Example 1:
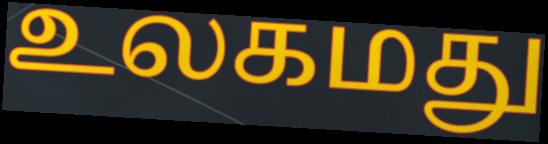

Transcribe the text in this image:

உலகமது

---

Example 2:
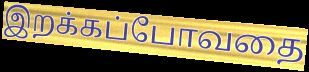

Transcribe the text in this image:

இறக்கப்போவதை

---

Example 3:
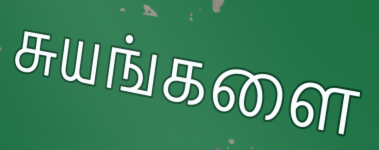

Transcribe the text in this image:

சுயங்களை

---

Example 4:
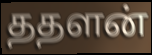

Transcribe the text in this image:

ததளன்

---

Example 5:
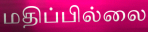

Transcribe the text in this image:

மதிப்பில்லை